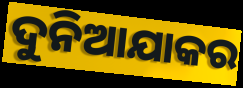
ଦୁନିଆଯାକର